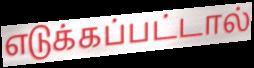
எடுக்கப்பட்டால்